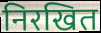
निरखित